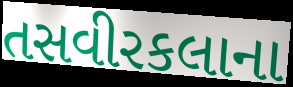
તસવીરકલાના